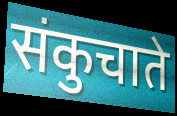
संकुचाते